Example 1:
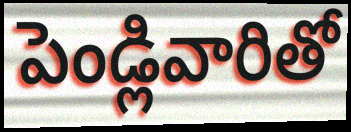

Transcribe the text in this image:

పెండ్లివారితో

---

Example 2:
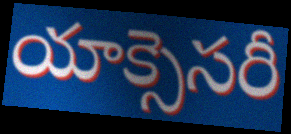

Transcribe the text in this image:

యాక్సెసరీ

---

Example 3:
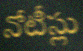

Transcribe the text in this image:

నోటీస్లు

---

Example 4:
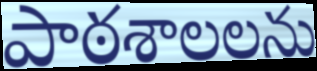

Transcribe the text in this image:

పాఠశాలలను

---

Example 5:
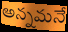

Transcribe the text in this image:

అన్నమనే